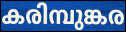
കരിമ്പുങ്കര